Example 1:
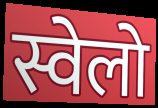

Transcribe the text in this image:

स्वेलो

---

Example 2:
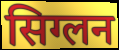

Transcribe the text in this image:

सिग्‍लन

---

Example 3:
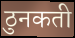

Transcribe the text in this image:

ठुनकती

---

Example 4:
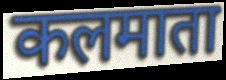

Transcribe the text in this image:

कलमाता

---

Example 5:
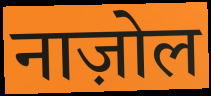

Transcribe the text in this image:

नाज़ोल